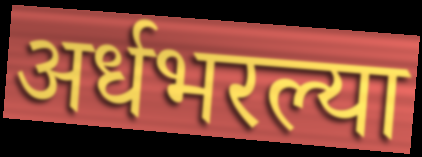
अर्धभरल्या